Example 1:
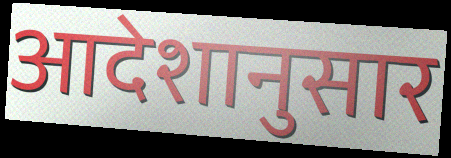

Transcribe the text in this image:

आदेशानुसार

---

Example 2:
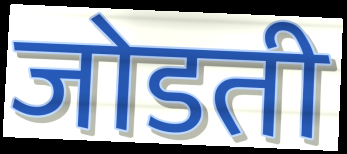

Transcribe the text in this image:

जोडती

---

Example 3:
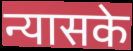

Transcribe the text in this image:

न्यासके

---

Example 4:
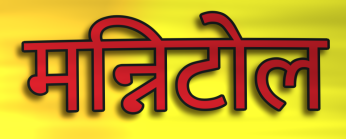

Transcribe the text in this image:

मन्निटोल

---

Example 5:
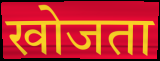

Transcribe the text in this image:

खोजता